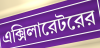
এক্সিলারেটরের